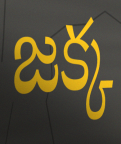
జక్క